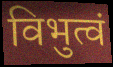
विभुत्वं